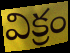
విక్రం